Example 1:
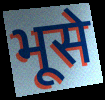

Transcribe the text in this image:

भूसे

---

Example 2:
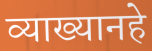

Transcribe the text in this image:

व्याख्यानहे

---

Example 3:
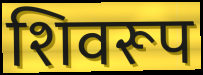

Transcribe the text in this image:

शिवरूप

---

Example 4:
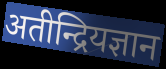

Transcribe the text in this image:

अतीन्द्रियज्ञान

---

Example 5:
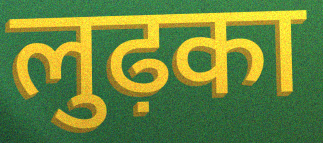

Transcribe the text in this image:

लुढ़का